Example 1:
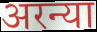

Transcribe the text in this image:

अरन्या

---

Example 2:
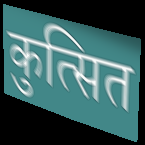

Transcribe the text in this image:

कुत्सित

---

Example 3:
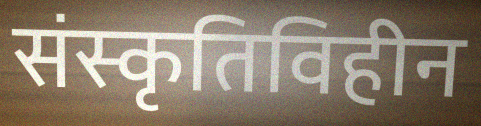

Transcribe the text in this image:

संस्कृतिविहीन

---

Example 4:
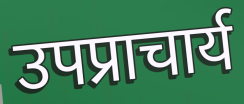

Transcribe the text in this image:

उपप्राचार्य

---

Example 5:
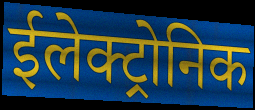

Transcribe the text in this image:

ईलेक्ट्रोनिक